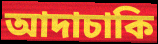
আদাচাকি